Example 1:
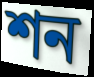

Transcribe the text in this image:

শন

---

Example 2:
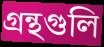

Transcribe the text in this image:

গ্রন্থগুলি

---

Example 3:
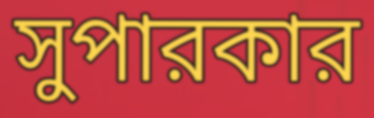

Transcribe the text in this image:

সুপারকার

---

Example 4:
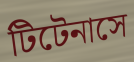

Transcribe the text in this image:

টিটেনাসে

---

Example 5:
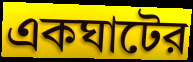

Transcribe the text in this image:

একঘাটের